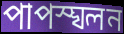
পাপস্খলন